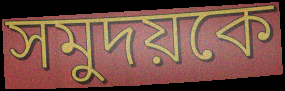
সমুদয়কে